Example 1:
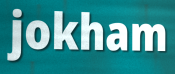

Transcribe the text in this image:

jokham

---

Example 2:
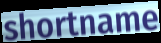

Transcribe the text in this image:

shortname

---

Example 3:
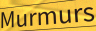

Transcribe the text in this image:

Murmurs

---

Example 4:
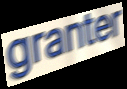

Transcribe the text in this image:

granter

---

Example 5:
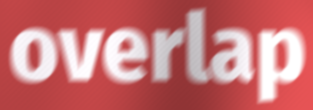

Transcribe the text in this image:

overlap